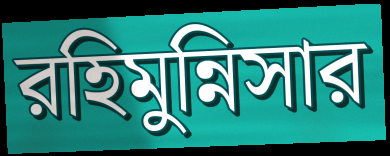
রহিমুন্নিসার